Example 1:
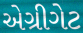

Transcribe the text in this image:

એગ્રીગેટ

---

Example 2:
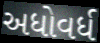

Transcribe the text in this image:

અધોવર્ધ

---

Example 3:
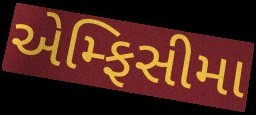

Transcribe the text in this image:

એમ્ફિસીમા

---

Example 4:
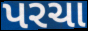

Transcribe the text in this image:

પરચા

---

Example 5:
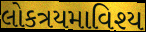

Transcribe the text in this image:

લોકત્રયમાવિશ્ય